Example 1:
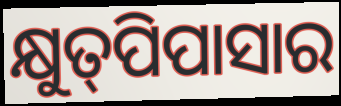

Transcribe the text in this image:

କ୍ଷୁତ୍‍ପିପାସାର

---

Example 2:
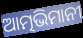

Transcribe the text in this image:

ଆତ୍ମଭିମାନୀ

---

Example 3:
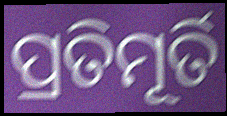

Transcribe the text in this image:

ପ୍ରତିମୂର୍ତି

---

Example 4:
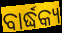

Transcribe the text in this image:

ବାର୍ଦ୍ଧକ୍ୟ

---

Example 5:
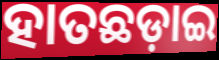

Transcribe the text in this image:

ହାତଛଡ଼ାଇ